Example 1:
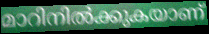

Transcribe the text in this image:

മാറിനിൽക്കുകയാണ്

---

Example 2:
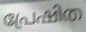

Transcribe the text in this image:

പ്രേഷിത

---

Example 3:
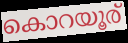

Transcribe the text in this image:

കൊറയൂര്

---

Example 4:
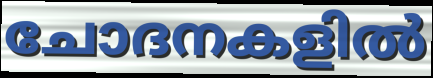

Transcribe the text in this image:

ചോദനകളിൽ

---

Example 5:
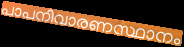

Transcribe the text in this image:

പാപനിവാരണസ്ഥാനം